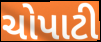
ચોપાટી